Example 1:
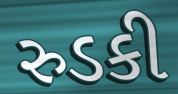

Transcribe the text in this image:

રુડકી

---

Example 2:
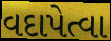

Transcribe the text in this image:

વદાપેત્વા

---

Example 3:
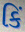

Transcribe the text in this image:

કિં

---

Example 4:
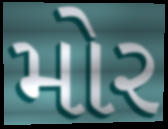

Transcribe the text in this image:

મોર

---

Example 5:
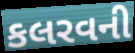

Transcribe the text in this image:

કલરવની